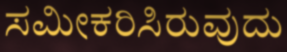
ಸಮೀಕರಿಸಿರುವುದು